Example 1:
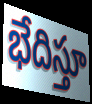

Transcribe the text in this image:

భేదిస్తూ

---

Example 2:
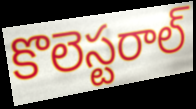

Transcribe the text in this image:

కొలెస్టరాల్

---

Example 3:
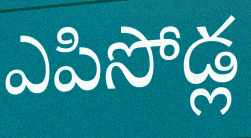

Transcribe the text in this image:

ఎపిసోడ్ల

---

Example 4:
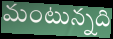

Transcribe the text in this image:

మంటున్నది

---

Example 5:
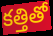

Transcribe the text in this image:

కత్తితో